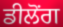
ਡੀਲੋਂਗ